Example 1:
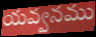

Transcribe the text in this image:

యవ్వనము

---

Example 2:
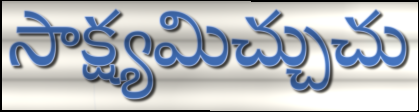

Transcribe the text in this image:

సాక్ష్యమిచ్చుచు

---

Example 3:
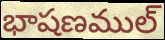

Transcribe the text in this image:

భాషణముల్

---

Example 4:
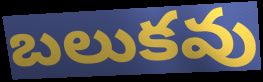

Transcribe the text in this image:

బలుకవు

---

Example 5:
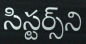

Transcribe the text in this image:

సిస్టర్స్‌ని